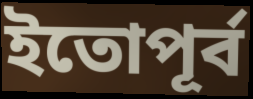
ইতোপূর্ব